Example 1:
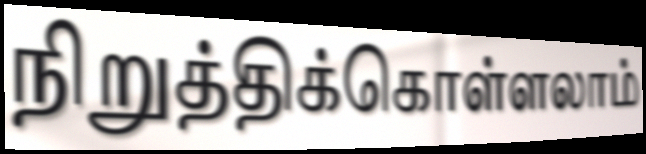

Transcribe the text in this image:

நிறுத்திக்கொள்ளலாம்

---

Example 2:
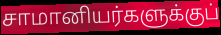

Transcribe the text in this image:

சாமானியர்களுக்குப்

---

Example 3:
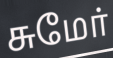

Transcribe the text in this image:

சுமேர்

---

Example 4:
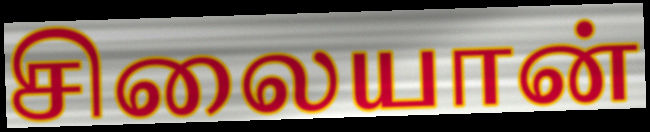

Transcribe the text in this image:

சிலையான்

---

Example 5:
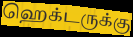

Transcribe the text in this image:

ஹெக்டருக்கு